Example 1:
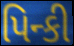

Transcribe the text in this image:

પિન્કી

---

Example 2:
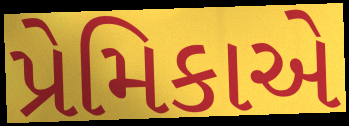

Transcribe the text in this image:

પ્રેમિકાએ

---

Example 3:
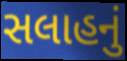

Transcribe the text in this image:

સલાહનું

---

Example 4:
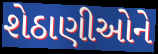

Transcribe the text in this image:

શેઠાણીઓને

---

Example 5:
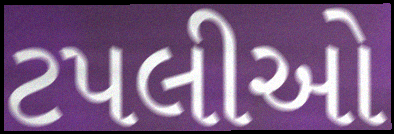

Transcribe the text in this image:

ટપલીઓ